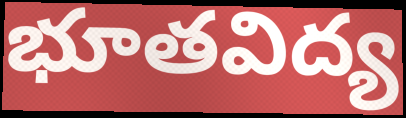
భూతవిద్య